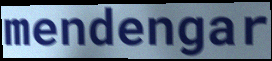
mendengar